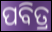
ପବିତ୍ର